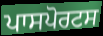
ਪਾਸਪੋਰਟਸ